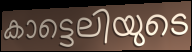
കാട്ടെലിയുടെ